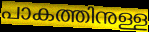
പാകത്തിനുള്ള